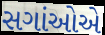
સગાંઓએ